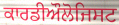
ਕਾਰਡੀਔਲੋਜਿਸਟ